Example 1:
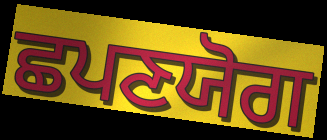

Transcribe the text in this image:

ਛਪਣਯੋਗ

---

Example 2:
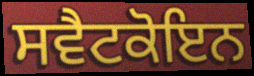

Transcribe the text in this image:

ਸਵੈਟਕੋਇਨ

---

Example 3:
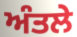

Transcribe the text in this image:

ਅੰਤਲੇ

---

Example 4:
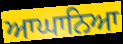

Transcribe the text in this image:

ਆਘਾਨਿਆ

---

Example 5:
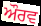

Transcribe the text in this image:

ਔਰਵ